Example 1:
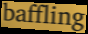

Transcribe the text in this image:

baffling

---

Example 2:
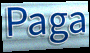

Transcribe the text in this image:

Paga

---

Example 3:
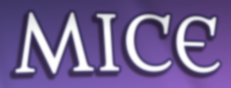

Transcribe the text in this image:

MICE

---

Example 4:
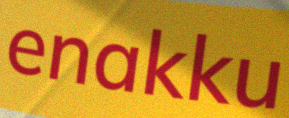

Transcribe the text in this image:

enakku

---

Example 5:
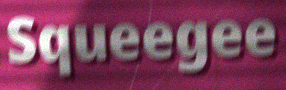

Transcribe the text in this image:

Squeegee